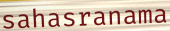
sahasranama